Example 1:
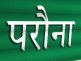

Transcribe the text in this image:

परौना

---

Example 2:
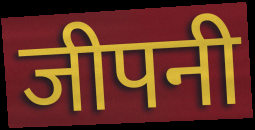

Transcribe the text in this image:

जीपनी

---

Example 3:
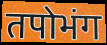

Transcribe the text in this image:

तपोभंग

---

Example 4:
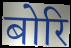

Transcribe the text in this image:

बोरि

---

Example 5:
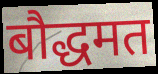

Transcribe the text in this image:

बौद्धमत